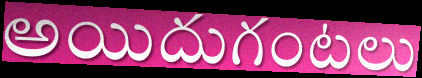
అయిదుగంటలు